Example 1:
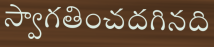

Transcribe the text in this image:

స్వాగతించదగినది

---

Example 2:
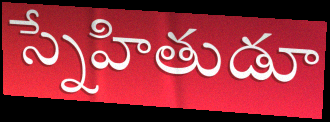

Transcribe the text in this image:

స్నేహితుడూ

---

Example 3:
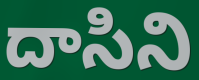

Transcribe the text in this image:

దాసిని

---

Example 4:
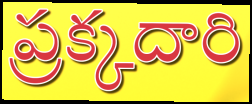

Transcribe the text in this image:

ప్రక్కదారి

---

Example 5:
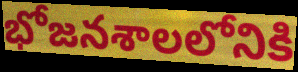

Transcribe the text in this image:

భోజనశాలలోనికి